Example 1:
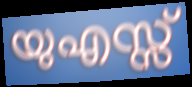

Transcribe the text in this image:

യുഎസ്സ്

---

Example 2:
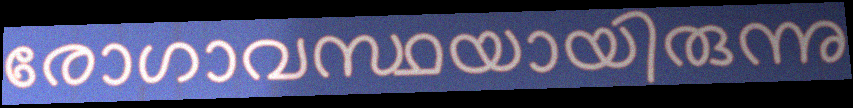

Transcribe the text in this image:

രോഗാവസ്ഥയായിരുന്നു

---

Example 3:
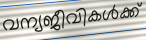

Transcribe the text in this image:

വന്യജീവികൾക്ക്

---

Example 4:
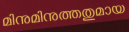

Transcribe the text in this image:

മിനുമിനുത്തതുമായ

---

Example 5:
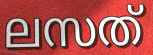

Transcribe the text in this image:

ലസത്